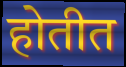
होतीत